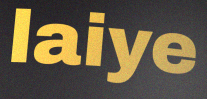
laiye